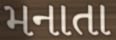
મનાતા